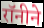
रॉनीने